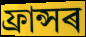
ফ্ৰান্সৰ